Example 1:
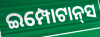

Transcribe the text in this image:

ଇମ୍ପୋଟାନ୍‌ସ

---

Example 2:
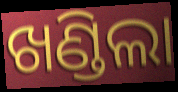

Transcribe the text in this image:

ଖଣ୍ଡିଲା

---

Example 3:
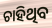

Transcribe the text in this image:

ଚାହିଥିବ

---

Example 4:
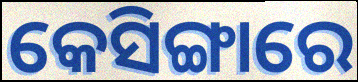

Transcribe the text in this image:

କେସିଙ୍ଗାରେ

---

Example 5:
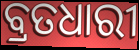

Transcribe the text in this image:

ବ୍ରତଧାରୀ